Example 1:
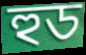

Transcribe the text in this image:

হুড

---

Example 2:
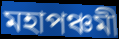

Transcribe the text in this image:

মহাপঞ্চমী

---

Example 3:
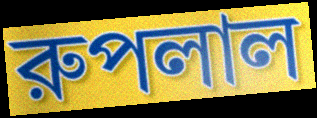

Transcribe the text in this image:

রুপলাল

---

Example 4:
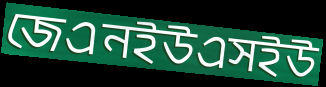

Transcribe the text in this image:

জেএনইউএসইউ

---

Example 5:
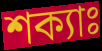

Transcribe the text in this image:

শক্যাঃ